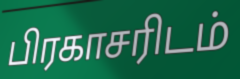
பிரகாசரிடம்